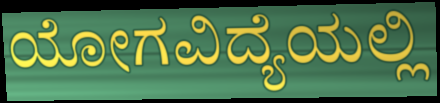
ಯೋಗವಿದ್ಯೆಯಲ್ಲಿ